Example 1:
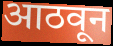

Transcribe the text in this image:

आठवून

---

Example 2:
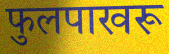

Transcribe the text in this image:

फुलपाखरू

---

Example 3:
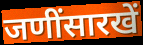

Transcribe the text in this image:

जणींसारखें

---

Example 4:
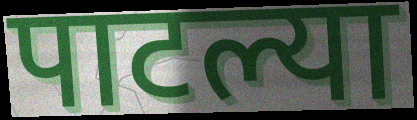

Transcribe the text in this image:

पाटल्या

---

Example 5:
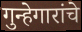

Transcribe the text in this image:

गुन्हेगारांचे